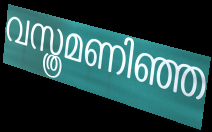
വസ്ത്രമണിഞ്ഞ